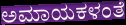
ಅಮಾಯಕಳಂತೆ